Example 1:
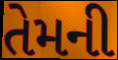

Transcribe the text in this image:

તેમની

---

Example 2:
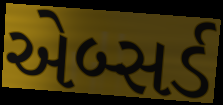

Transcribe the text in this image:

એબ્સર્ડ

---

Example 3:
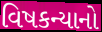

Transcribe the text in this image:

વિષકન્યાનો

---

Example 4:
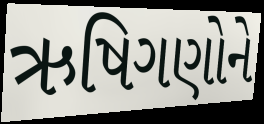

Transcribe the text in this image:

ઋષિગણોને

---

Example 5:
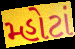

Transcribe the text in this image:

મ્હોટાં